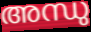
അന്ധു